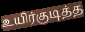
உயிர்குடித்த